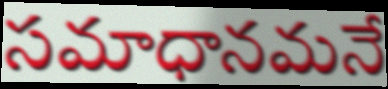
సమాధానమనే